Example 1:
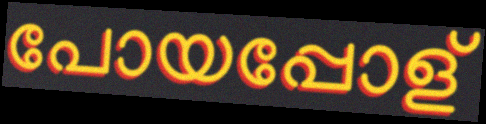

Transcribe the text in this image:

പോയപ്പോള്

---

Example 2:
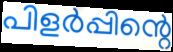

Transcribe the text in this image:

പിളർപ്പിന്റെ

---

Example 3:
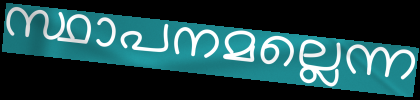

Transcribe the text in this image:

സ്ഥാപനമല്ലെന്ന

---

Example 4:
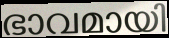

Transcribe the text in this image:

ഭാവമായി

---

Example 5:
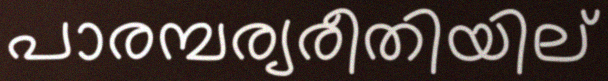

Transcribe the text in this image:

പാരമ്പര്യരീതിയില്